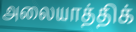
அலையாத்திக்